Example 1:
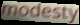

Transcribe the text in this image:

modesty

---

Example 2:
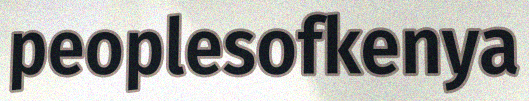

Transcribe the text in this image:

peoplesofkenya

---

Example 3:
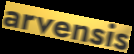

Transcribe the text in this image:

arvensis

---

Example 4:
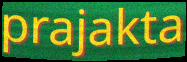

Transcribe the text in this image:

prajakta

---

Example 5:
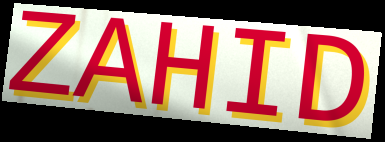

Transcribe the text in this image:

ZAHID